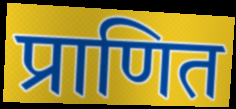
प्राणित